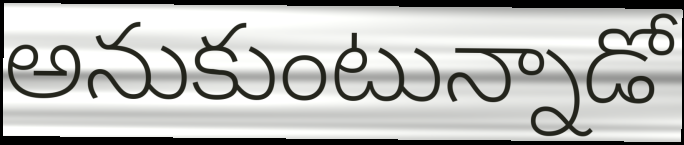
అనుకుంటున్నాడో